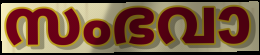
സംഭവാ